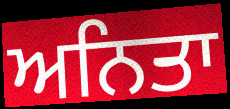
ਅਨਿਤਾ